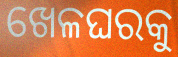
ଖେଳଘରକୁ